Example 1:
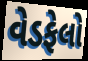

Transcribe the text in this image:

વેડફેલો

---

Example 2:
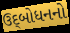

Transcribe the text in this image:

ઉદ્‌બોધનનો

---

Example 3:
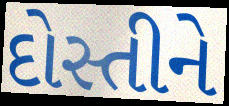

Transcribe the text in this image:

દોસ્તીને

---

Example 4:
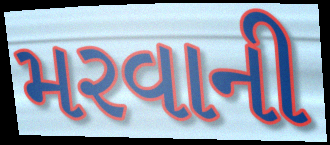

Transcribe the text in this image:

મરવાની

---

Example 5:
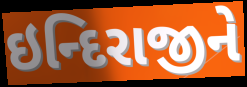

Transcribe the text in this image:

ઇન્દિરાજીને